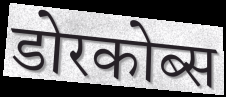
डोरकोब्स